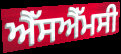
ਐੱਸਐੱਮਸੀ